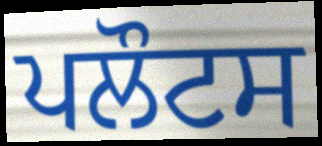
ਪਲੌਟਸ